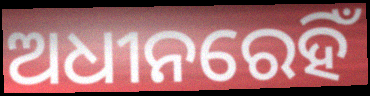
ଅଧୀନରେହିଁ